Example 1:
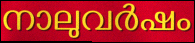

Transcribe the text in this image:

നാലുവർഷം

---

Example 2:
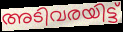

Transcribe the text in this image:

അടിവരയിട്ട്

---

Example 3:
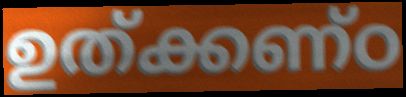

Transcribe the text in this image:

ഉത്ക്കണ്ഠ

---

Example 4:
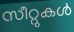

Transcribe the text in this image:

സീറ്റുകൾ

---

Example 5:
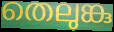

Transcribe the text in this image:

തെലുങ്കു